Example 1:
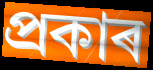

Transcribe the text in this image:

প্ৰকাৰ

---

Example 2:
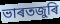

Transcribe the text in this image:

ভাৰতজুৰি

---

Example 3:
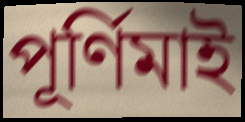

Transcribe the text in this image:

পূৰ্ণিমাই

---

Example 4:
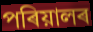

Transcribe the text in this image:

পৰিয়ালৰ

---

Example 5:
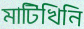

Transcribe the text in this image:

মাটিখিনি